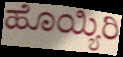
ಹೊಯ್ಯಿರಿ